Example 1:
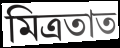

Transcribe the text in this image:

মিত্ৰতাত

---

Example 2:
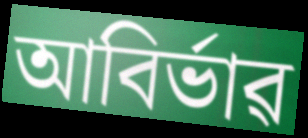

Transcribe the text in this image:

আবিৰ্ভাৱ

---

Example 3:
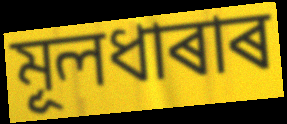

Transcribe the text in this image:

মূলধাৰাৰ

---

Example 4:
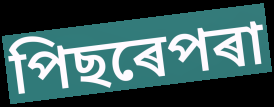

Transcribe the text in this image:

পিছৰেপৰা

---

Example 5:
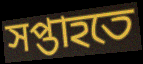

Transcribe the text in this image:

সপ্তাহতে